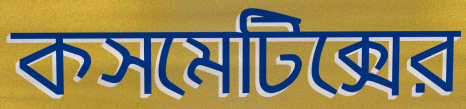
কসমেটিক্সের